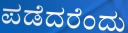
ಪಡೆದರೆಂದು